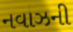
નવાઝની